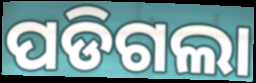
ପଡିଗଲା